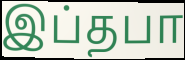
இப்தபா